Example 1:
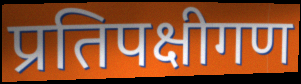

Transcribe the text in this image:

प्रतिपक्षीगण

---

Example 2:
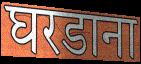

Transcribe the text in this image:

घरडाना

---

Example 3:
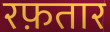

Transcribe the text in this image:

रफ़तार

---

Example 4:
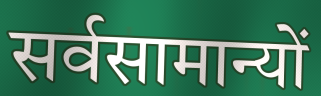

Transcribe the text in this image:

सर्वसामान्यों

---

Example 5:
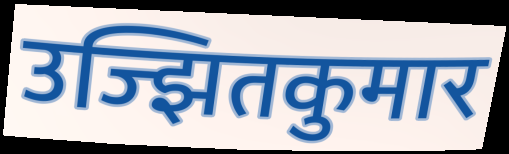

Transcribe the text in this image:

उज्झितकुमार